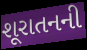
શૂરાતનની